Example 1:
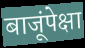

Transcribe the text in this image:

बाजूंपेक्षा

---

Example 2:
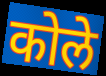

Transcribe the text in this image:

कोले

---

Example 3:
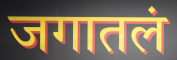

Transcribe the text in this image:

जगातलं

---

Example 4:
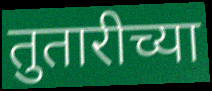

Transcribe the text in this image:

तुतारीच्या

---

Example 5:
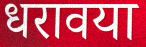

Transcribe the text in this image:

धरावया